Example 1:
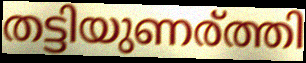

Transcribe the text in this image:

തട്ടിയുണര്ത്തി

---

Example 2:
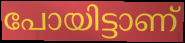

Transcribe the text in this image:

പോയിട്ടാണ്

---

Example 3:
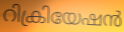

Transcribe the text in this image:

റിക്രിയേഷൻ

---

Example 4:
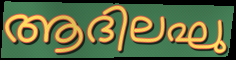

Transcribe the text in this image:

ആദിലഘു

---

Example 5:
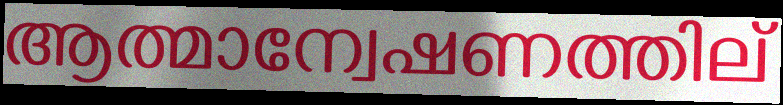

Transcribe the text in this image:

ആത്മാന്വേഷണത്തില്